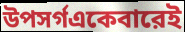
উপসর্গএকেবারেই